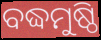
ବଦ୍ଧମୁଷ୍ଠି